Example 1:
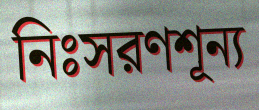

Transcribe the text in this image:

নিঃসরণশূন্য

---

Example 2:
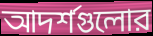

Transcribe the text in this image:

আদর্শগুলোর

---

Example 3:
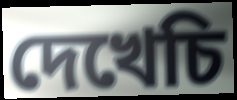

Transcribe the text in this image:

দেখেচি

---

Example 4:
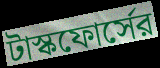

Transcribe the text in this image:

টাস্কফোর্সের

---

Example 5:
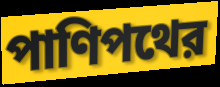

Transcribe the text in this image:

পাণিপথের